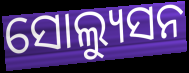
ସୋଲ୍ୟୁସନ